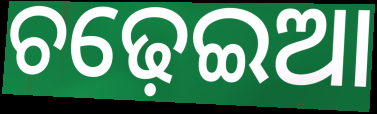
ଚଢ଼େଇଆ